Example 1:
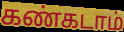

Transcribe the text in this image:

கண்கடாம்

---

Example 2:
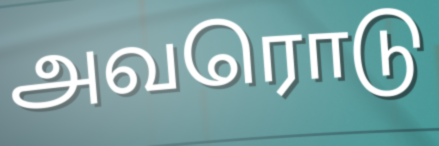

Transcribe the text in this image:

அவரொடு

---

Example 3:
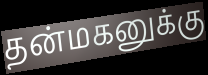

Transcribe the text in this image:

தன்மகனுக்கு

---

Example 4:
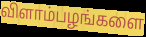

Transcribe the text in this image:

விளாம்பழங்களை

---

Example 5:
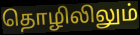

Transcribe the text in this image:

தொழிலிலும்